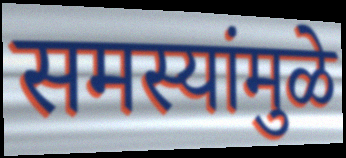
समस्यांमुळे